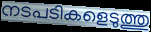
നടപടികളെടുത്തു